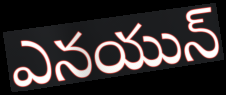
ఎనయున్